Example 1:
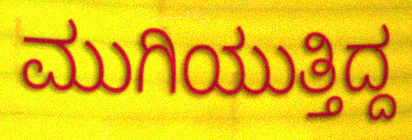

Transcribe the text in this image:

ಮುಗಿಯುತ್ತಿದ್ದ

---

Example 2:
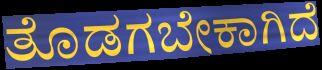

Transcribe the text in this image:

ತೊಡಗಬೇಕಾಗಿದೆ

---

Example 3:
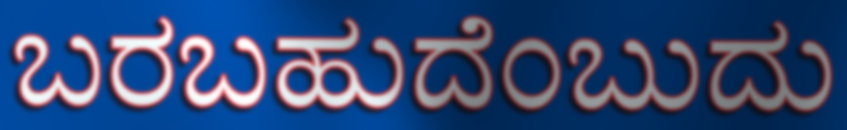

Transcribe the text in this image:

ಬರಬಹುದೆಂಬುದು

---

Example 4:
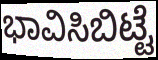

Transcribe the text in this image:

ಭಾವಿಸಿಬಿಟ್ಟೆ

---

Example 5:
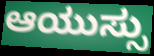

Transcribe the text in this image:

ಆಯುಸ್ಸು